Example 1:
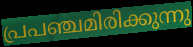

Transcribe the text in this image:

പ്രപഞ്ചമിരിക്കുന്നു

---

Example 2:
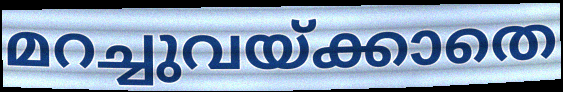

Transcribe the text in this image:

മറച്ചുവയ്ക്കാതെ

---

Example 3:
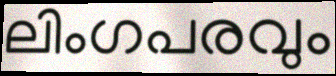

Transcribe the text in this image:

ലിംഗപരവും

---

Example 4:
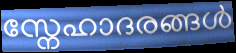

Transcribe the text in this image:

സ്നേഹാദരങ്ങൾ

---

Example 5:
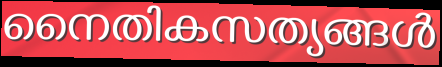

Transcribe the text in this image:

നൈതികസത്യങ്ങൾ